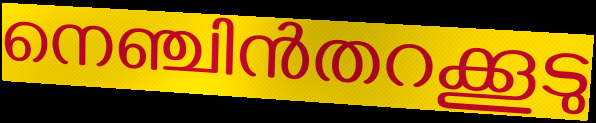
നെഞ്ചിൻതറക്കൂടു